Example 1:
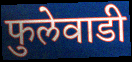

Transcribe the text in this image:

फुलेवाडी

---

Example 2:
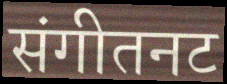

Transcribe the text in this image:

संगीतनट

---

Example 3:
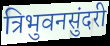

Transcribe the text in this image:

त्रिभुवनसुंदरी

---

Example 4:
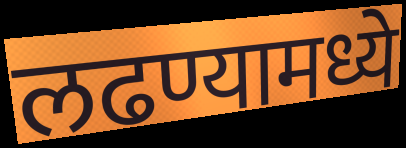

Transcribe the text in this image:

लढण्यामध्ये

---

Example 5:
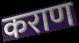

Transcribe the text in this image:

कराण